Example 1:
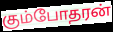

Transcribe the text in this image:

கும்போதரன்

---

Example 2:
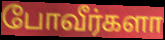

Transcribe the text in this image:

போவீர்களா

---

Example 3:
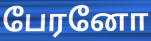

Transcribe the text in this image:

பேரனோ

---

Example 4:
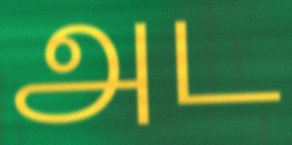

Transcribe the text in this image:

அட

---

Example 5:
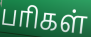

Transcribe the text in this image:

பரிகள்